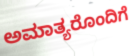
ಅಮಾತ್ಯರೊಂದಿಗೆ